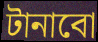
টানাবো